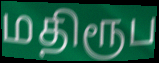
மதிரூப